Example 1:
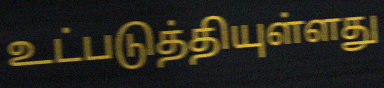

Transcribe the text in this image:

உட்படுத்தியுள்ளது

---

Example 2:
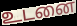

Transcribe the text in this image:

உடனை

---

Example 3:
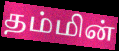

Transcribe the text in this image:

தம்மின்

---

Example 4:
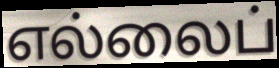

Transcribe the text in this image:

எல்லைப்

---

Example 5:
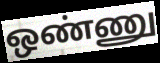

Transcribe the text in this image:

ஒண்ணு